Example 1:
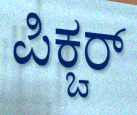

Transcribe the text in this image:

ಪಿಕ್ಚರ್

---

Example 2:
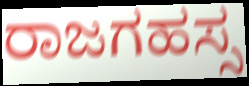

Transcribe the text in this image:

ರಾಜಗಹಸ್ಸ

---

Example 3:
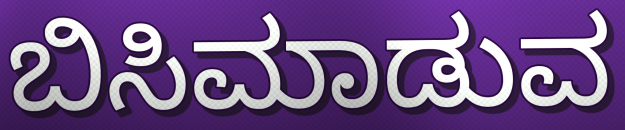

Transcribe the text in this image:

ಬಿಸಿಮಾಡುವ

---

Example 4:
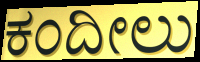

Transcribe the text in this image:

ಕಂದೀಲು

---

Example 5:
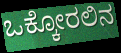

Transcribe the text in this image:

ಒಕ್ಕೋರಲಿನ